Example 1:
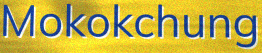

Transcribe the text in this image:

Mokokchung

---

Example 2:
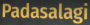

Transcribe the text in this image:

Padasalagi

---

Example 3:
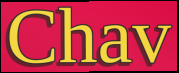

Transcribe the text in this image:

Chav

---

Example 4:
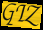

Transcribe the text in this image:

GIZ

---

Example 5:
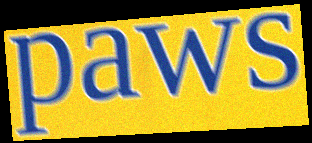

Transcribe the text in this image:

paws